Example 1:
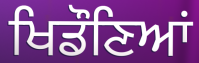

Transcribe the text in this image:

ਖਿਡੌਣਿਆਂ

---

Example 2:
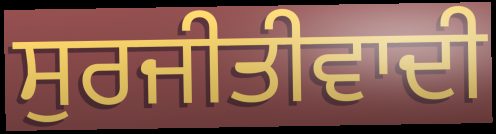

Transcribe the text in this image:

ਸੁਰਜੀਤੀਵਾਦੀ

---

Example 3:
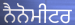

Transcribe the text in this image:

ਨੈਨੋਮੀਟਰ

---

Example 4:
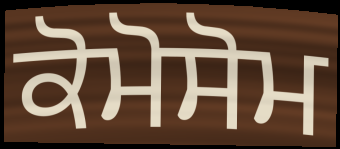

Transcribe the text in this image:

ਕੋਮੋਸੋਮ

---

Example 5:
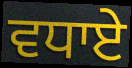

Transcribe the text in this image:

ਵਧਾਏ